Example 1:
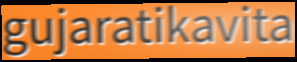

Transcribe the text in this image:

gujaratikavita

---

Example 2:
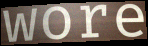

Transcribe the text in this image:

wore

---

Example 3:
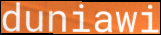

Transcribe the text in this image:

duniawi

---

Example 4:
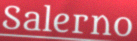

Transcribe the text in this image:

Salerno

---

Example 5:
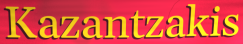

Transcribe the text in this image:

Kazantzakis